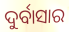
ଦୁର୍ବାସାର